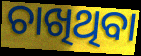
ଚାଖିଥିବା